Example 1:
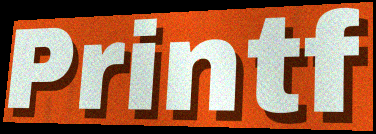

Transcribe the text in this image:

Printf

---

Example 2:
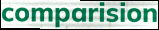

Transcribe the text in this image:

comparision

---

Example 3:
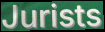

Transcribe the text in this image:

Jurists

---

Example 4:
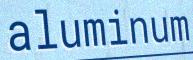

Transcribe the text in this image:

aluminum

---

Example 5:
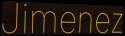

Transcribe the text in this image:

Jimenez